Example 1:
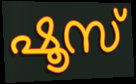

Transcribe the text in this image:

ഷൂസ്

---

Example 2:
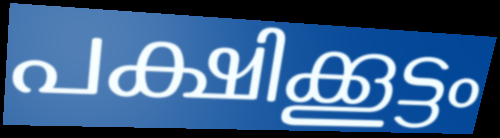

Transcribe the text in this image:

പക്ഷിക്കൂട്ടം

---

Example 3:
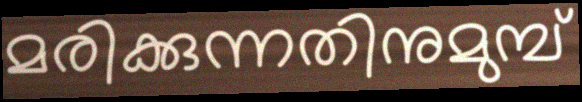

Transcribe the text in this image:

മരിക്കുന്നതിനുമുമ്പ്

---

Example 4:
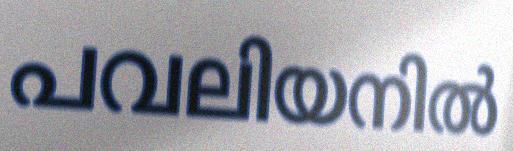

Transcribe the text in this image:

പവലിയനിൽ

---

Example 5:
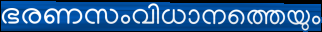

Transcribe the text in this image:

ഭരണസംവിധാനത്തെയും